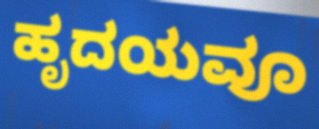
ಹೃದಯವೂ